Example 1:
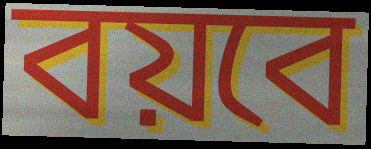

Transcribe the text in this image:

বয়বে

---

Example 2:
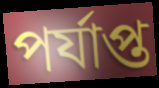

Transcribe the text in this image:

পর্যাপ্ত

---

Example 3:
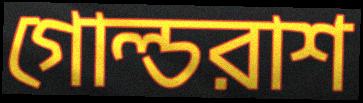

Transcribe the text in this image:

গোল্ডরাশ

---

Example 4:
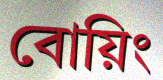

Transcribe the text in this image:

বোয়িং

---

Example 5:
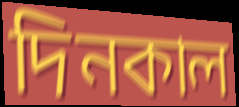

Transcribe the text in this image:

দিনকাল